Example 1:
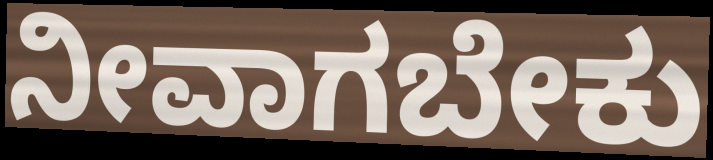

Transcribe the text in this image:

ನೀವಾಗಬೇಕು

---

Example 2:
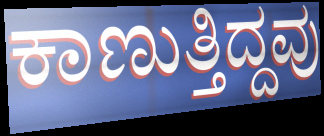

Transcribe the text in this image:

ಕಾಣುತ್ತಿದ್ದವು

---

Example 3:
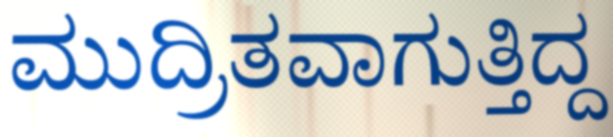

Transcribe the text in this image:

ಮುದ್ರಿತವಾಗುತ್ತಿದ್ದ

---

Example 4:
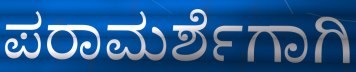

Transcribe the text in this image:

ಪರಾಮರ್ಶೆಗಾಗಿ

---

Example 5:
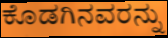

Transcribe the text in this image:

ಕೊಡಗಿನವರನ್ನು